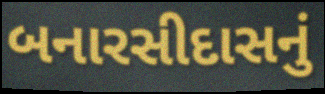
બનારસીદાસનું